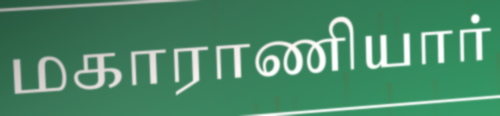
மகாராணியார்